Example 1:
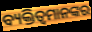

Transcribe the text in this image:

ବ୍ୟକ୍ତିତ୍ୱମାନଙ୍କର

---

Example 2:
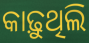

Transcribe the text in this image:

କାଢ଼ୁଥିଲି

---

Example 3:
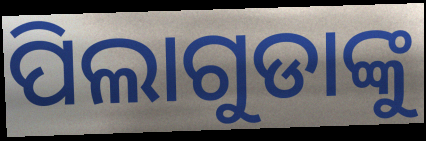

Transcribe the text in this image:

ପିଲାଗୁଡାଙ୍କୁ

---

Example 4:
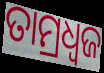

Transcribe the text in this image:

ତାମ୍ରଧ୍ୱଜ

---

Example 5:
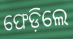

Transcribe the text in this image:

ଫେଡ଼ିଲେ